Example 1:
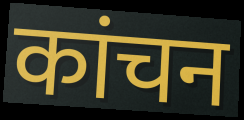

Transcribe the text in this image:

कांचन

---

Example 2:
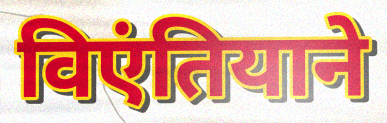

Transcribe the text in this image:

विएंतियाने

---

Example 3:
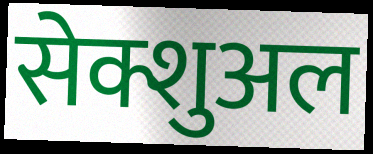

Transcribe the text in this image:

सेक्शुअल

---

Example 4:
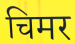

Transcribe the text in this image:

चिमर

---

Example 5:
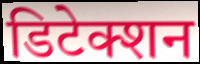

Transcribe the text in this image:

डिटेक्शन